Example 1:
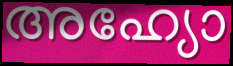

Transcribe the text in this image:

അഹ്യോ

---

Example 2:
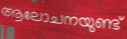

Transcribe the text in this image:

ആലോചനയുണ്ട്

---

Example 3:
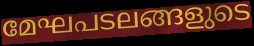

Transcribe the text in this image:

മേഘപടലങ്ങളുടെ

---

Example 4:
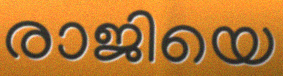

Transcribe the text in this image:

രാജിയെ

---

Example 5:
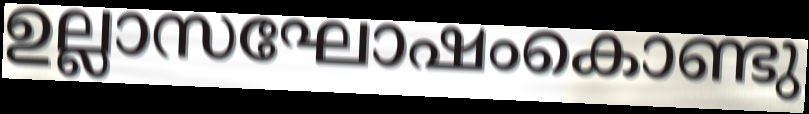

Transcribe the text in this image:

ഉല്ലാസഘോഷംകൊണ്ടു